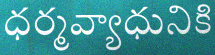
ధర్మవ్యాధునికి